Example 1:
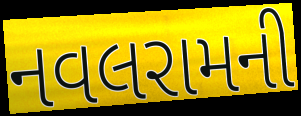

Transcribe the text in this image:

નવલરામની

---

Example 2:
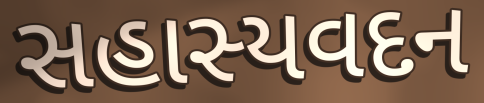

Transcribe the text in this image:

સહાસ્યવદન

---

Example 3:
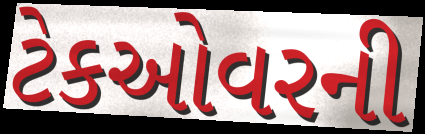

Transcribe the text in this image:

ટેકઓવરની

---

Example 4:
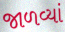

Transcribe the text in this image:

જાળવ્યાં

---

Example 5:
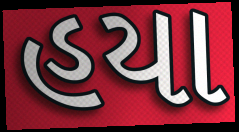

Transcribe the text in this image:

હયા